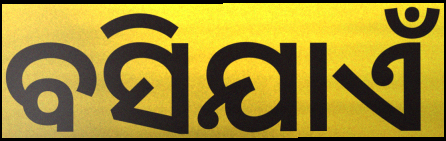
ବସିଯାଏଁ